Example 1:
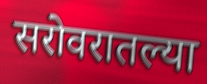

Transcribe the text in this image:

सरोवरातल्या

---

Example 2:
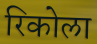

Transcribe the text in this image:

रिकोला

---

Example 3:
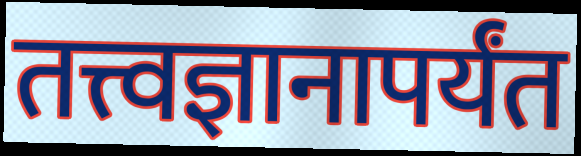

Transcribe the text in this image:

तत्त्वज्ञानापर्यंत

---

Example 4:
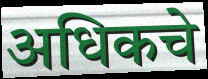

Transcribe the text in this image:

अधिकचे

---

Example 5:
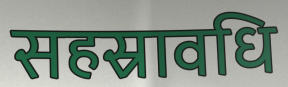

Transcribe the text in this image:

सहस्रावधि